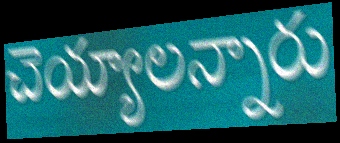
చెయ్యాలన్నారు